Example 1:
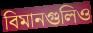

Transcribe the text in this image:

বিমানগুলিও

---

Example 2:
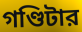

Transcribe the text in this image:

গণ্ডিটার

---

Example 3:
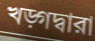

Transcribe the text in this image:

খড়্গদ্বারা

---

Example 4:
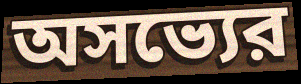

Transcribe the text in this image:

অসভ্যের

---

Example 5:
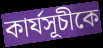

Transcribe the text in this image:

কার্যসূচীকে